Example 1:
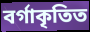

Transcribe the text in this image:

বৰ্গাকৃতিত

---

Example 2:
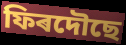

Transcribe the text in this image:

ফিৰদৌছে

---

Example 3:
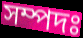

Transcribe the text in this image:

সম্পদঃ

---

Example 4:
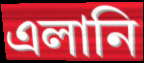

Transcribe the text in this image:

এলানি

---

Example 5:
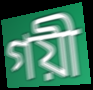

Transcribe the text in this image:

গয়ী